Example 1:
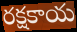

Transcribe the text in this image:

రక్షకాయ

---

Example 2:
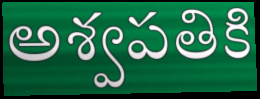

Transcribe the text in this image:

అశ్వపతికి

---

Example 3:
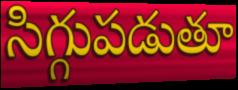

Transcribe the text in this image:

సిగ్గుపడుతూ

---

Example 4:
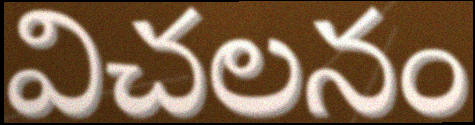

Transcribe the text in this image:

విచలనం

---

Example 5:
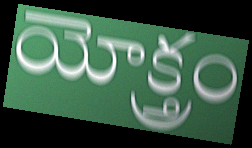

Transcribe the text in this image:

యోక్త్రం